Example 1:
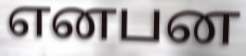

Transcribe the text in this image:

எனபன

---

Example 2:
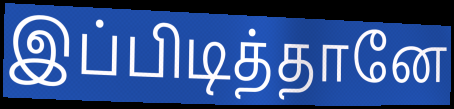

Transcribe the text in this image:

இப்பிடித்தானே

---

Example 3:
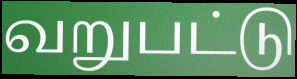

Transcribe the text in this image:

வறுபட்டு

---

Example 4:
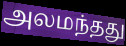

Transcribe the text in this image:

அலமந்தது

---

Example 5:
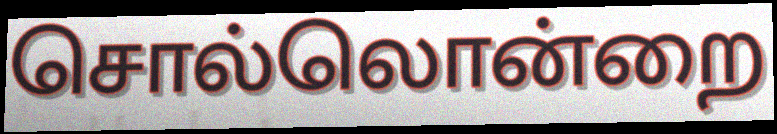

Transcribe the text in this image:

சொல்லொன்றை